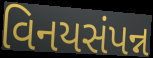
વિનયસંપન્ન